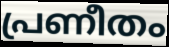
പ്രണീതം